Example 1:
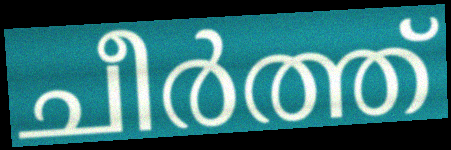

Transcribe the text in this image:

ചീർത്ത്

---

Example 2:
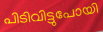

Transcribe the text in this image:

പിടിവിട്ടുപോയി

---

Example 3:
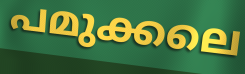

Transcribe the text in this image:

പമുക്കലെ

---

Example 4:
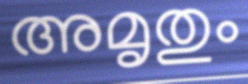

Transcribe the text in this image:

അമൃതും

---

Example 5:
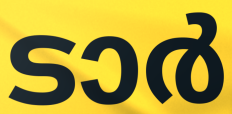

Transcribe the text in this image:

ടാർ